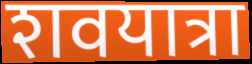
शवयात्रा